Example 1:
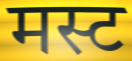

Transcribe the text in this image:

मस्‍ट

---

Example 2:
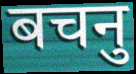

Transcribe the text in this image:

बचनु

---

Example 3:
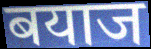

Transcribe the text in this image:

बयाज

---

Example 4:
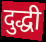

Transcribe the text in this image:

दुद्धी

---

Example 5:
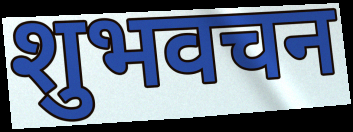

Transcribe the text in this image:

शुभवचन